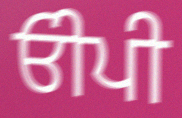
ਓੀਪੀ